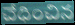
చేధించిన